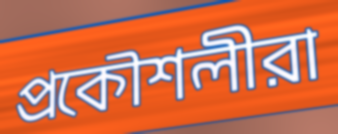
প্রকৌশলীরা